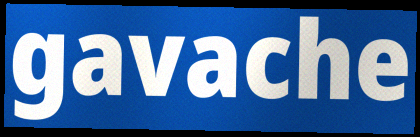
gavache